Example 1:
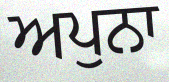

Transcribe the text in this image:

ਅਪੁਨਾ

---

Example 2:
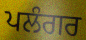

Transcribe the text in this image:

ਪਲੰਗਰ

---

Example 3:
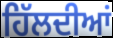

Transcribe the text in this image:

ਹਿੱਲਦੀਆਂ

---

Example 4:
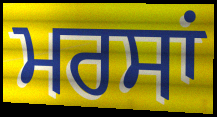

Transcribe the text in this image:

ਮਰਸਾਂ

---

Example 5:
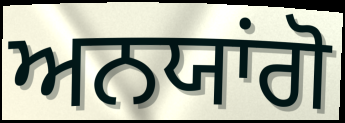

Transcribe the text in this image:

ਅਨਯਾਂਗੋ